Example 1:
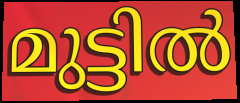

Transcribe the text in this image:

മുട്ടിൽ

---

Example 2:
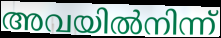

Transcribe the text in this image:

അവയിൽനിന്ന്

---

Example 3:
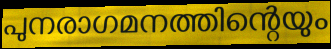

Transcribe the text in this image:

പുനരാഗമനത്തിന്റെയും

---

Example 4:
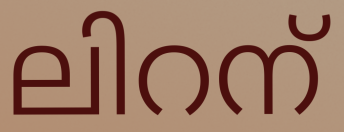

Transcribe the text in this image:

ലിറന്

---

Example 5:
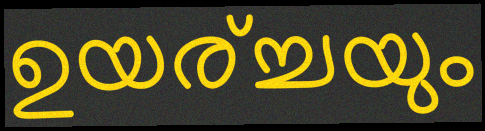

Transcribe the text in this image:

ഉയര്ച്ചയും